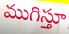
ముగిస్తూ